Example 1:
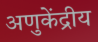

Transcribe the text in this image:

अणुकेंद्रीय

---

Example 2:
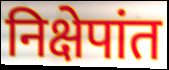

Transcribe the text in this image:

निक्षेपांत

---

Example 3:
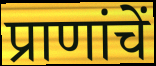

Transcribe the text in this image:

प्राणांचें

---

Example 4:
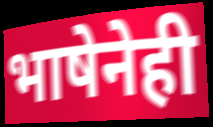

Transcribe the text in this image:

भाषेनेही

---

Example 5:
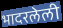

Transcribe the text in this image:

भादरलेली